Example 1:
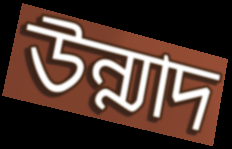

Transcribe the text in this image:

উন্মাদ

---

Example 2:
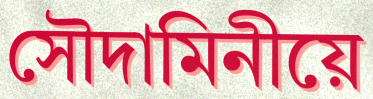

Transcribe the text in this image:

সৌদামিনীয়ে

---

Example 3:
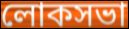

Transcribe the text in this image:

লোকসভা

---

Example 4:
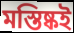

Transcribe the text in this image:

মস্তিষ্কই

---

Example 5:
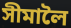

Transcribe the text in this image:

সীমালৈ